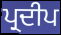
ਪ੍ਰਦੀਪ